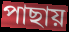
পাছায়